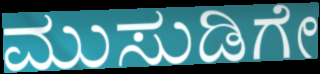
ಮುಸುಡಿಗೇ